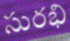
సురభి